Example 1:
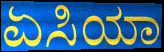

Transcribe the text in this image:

ಏಸಿಯಾ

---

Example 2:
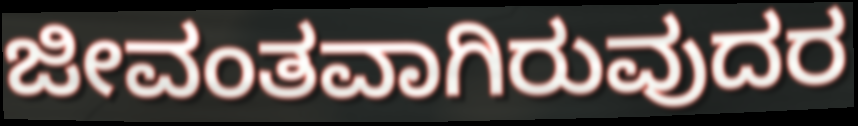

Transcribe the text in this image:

ಜೀವಂತವಾಗಿರುವುದರ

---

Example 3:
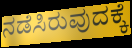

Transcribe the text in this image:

ನಡೆಸಿರುವುದಕ್ಕೆ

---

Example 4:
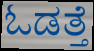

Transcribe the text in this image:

ಓಡತ್ತೆ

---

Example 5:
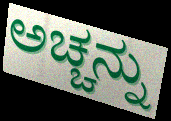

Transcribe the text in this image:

ಅಚ್ಚನ್ನು